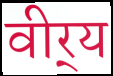
वीर्य